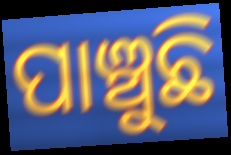
ପାଞ୍ଚୁଛି